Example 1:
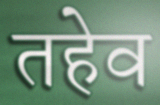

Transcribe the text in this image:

तहेव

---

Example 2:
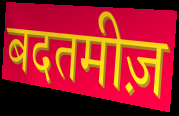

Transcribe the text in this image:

बदतमीज़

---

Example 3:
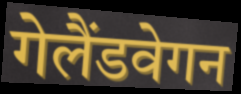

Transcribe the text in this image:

गेलैंडवेगन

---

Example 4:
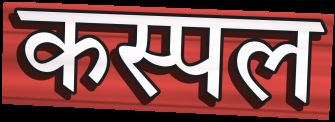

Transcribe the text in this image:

कस्पल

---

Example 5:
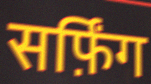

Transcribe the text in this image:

सर्फ़िंग